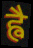
ह्वै